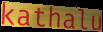
kathalu